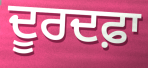
ਦੂਰਦਫ਼ਾ